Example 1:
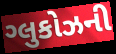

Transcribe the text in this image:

ગ્લુકોઝની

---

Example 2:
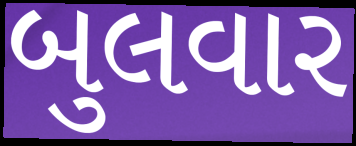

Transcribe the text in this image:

બુલવાર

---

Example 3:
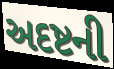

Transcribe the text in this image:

અદષ્ટની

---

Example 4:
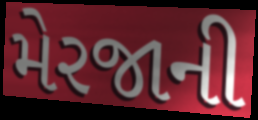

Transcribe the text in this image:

મેરજાની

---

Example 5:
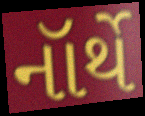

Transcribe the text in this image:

નૉર્થે